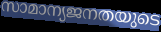
സാമാന്യജനതയുടെ